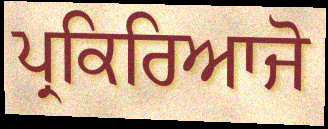
ਪ੍ਰਕਿਰਿਆਜੋ